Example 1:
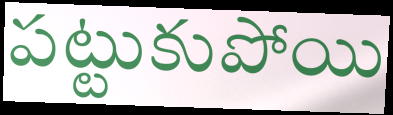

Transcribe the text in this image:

పట్టుకుపోయి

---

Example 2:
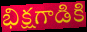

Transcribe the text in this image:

భిక్షగాడికి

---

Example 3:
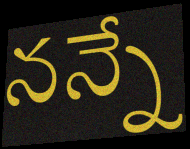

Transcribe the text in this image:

నన్నే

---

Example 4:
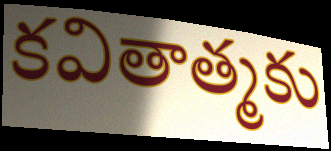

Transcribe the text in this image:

కవితాత్మకు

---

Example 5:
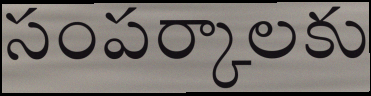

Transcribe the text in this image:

సంపర్కాలకు